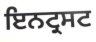
ਇਨਟ੍ਰਸਟ